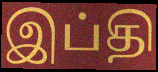
இப்தி